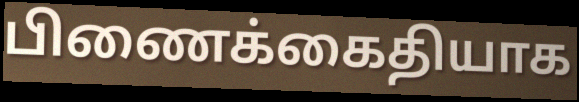
பிணைக்கைதியாக